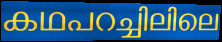
കഥപറച്ചിലിലെ